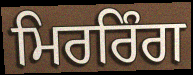
ਮਿਰਰਿੰਗ